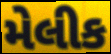
મેલીક